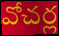
వోచర్ల